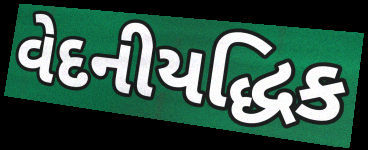
વેદનીયદ્ધિક